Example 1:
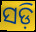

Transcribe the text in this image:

ସଡ଼ି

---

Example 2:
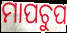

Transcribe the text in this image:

ମାପଚୁପ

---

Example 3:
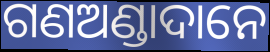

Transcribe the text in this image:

ଗଣଅଣ୍ଡାଦାନେ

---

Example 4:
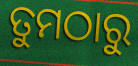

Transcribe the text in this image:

ତୁମଠାରୁ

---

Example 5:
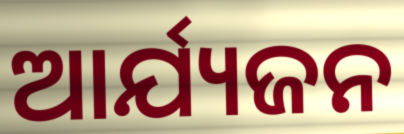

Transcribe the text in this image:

ଆର୍ଯ୍ୟଜନ